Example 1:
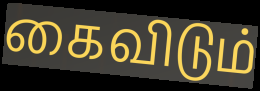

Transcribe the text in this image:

கைவிடும்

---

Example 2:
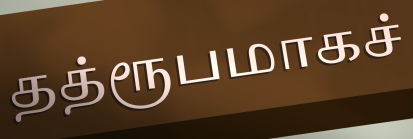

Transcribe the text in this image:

தத்ரூபமாகச்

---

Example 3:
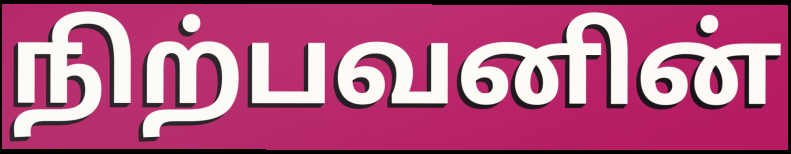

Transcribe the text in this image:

நிற்பவனின்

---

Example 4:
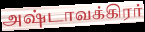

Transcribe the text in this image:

அஷ்டாவக்கிரர்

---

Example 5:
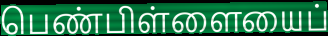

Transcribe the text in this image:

பெண்பிள்ளையைப்